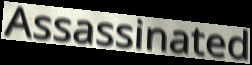
Assassinated